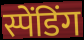
स्पेंडिंग